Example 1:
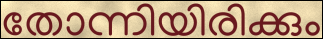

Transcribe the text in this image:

തോന്നിയിരിക്കും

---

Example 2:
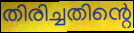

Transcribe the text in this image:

തിരിച്ചതിന്റെ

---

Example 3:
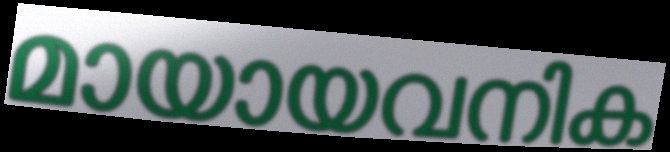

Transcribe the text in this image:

മായായവനിക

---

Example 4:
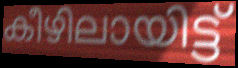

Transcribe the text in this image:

കീഴിലായിട്ട്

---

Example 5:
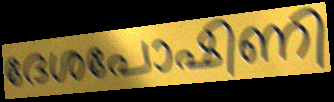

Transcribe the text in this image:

ദേശപോഷിണി